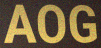
AOG